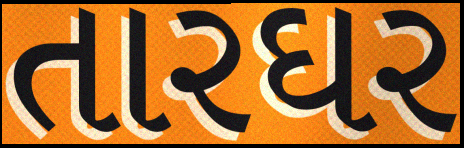
તારઘર